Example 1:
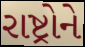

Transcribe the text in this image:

રાષ્ટ્રોને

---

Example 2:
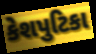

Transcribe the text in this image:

કેશપુટિકા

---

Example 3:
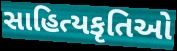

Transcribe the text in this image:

સાહિત્યકૃતિઓ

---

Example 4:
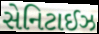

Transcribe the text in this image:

સેનિટાઈઝ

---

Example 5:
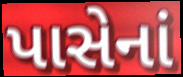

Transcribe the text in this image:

પાસેનાં